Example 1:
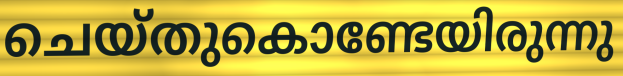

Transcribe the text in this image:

ചെയ്തുകൊണ്ടേയിരുന്നു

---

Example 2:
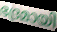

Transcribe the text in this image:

ഭദ്രമായി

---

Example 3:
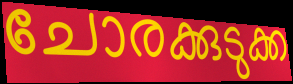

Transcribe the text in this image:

ചോരക്കുടുക്ക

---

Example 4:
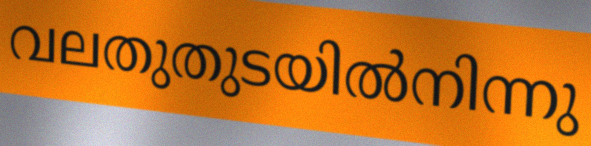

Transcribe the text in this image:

വലതുതുടയിൽനിന്നു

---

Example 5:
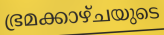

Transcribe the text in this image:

ഭ്രമക്കാഴ്ചയുടെ